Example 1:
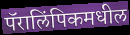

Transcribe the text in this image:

पॅरालिंपिकमधील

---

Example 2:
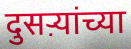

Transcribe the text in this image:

दुसऱ्‍यांच्या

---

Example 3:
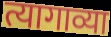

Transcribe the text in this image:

त्यागाव्या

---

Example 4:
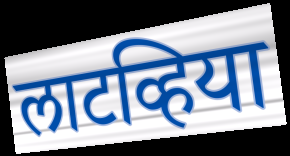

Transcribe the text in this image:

लाटव्हिया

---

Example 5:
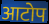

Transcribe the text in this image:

आटोप